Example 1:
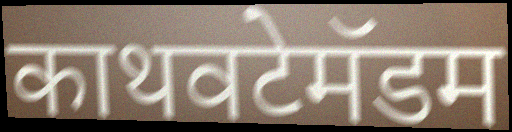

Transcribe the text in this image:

काथवटेमॅडम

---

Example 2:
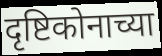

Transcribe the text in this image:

दृष्टिकोनाच्या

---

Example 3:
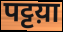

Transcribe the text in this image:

पट्टय़ा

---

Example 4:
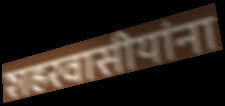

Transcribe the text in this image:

शहरवासीयांना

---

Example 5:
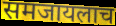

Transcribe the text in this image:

समजायलाच